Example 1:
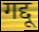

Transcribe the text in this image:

गद्दू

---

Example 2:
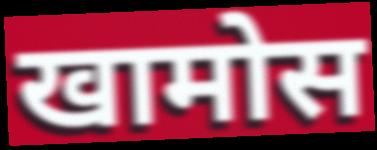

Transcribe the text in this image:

खामोस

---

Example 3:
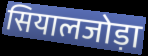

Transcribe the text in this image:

सियालजोड़ा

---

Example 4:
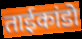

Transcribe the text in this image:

ताईकांडो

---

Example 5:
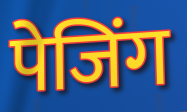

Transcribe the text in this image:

पेजिंग